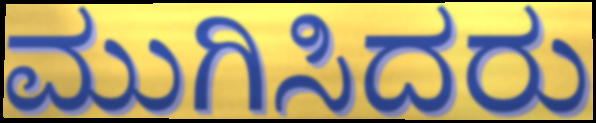
ಮುಗಿಸಿದರು